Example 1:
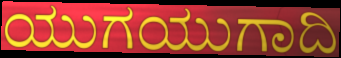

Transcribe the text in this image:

ಯುಗಯುಗಾದಿ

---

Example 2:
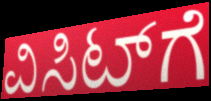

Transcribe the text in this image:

ವಿಸಿಟ್‌ಗೆ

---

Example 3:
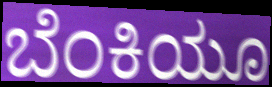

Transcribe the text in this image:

ಬೆಂಕಿಯೂ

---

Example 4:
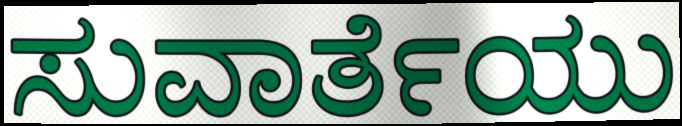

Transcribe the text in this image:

ಸುವಾರ್ತೆಯು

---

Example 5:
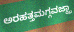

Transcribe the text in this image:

ಅರಹತ್ತಮಗ್ಗವಜ್ಝಾ